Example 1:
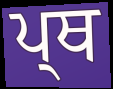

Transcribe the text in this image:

ਪ੍ਥ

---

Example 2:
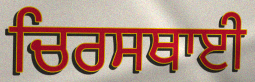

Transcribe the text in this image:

ਚਿਰਸਥਾਈ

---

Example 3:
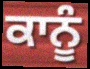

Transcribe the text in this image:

ਕਾਨੂੰ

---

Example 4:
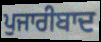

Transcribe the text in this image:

ਪੁਜਾਰੀਬਾਦ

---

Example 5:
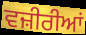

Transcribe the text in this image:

ਵਜ਼ੀਰੀਆਂ